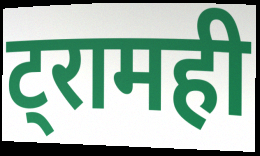
ट्रामही